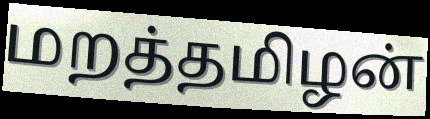
மறத்தமிழன்